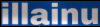
illainu